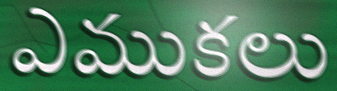
ఎముకలు